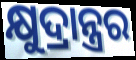
କ୍ଷୁଦ୍ରାନ୍ତ୍ରର